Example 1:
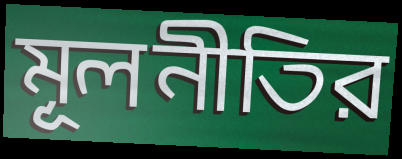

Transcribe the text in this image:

মূলনীতির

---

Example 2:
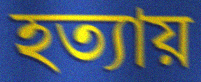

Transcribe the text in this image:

হত্যায়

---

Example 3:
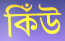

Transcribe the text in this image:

কিঁউ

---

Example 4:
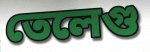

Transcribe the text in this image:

তেলেগু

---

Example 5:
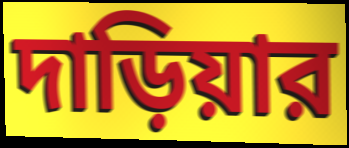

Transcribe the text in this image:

দাড়িয়ার